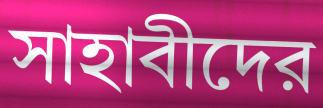
সাহাবীদের